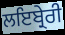
ਲਇਬ੍ਰੇਰੀ